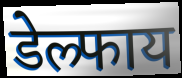
डेल्फाय